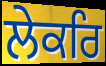
ਲੇਕਰਿ